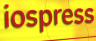
iospress